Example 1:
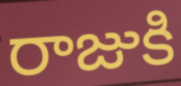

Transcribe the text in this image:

రాజుకి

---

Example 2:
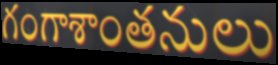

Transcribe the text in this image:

గంగాశాంతనులు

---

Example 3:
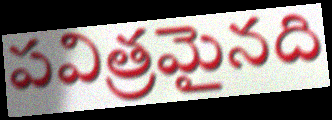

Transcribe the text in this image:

పవిత్రమైనది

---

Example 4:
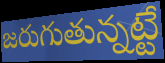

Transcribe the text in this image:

జరుగుతున్నట్టే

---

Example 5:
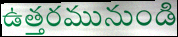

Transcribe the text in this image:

ఉత్తరమునుండి